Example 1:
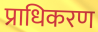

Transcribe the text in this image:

प्राधिकरण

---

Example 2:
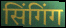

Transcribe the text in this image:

सिंगिंग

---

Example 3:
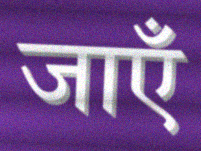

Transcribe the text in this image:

जाएँ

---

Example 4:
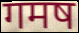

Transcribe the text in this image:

गमष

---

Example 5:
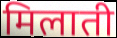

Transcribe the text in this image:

मिलाती